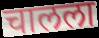
चालला